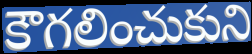
కౌగలించుకుని